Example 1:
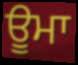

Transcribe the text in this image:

ਊਮਾ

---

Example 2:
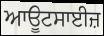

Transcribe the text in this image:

ਆਊਟਸਾਈਜ਼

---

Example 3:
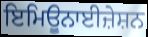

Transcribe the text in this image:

ਇਮਿਊਨਾਈਜ਼ੇਸ਼ਨ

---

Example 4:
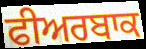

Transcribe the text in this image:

ਫੀਅਰਬਾਕ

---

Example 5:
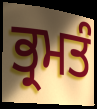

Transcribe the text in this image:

ਭ੍ਰਮਤੰ